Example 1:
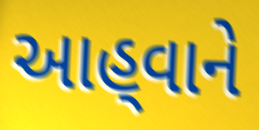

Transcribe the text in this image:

આહ્‌વાને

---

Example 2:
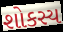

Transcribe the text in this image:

શોકસ્ય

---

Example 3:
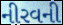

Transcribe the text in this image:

નીરવની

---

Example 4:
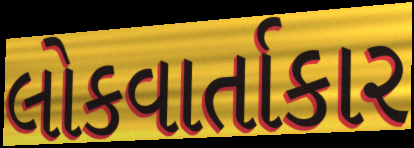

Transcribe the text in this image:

લોકવાર્તાકાર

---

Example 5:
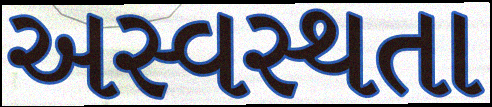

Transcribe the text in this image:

અસ્વસ્થતા